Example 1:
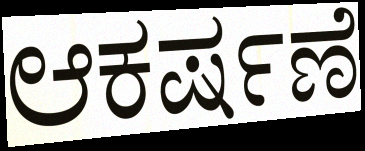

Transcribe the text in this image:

ಆಕರ್ಷಣೆ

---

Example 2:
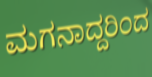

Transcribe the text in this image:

ಮಗನಾದ್ದರಿಂದ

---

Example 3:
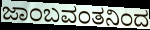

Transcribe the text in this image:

ಜಾಂಬವಂತನಿಂದ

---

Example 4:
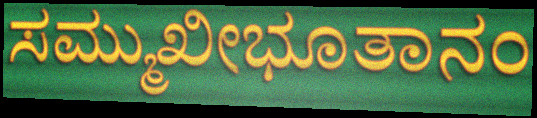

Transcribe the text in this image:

ಸಮ್ಮುಖೀಭೂತಾನಂ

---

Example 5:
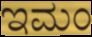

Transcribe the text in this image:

ಇಮಂ